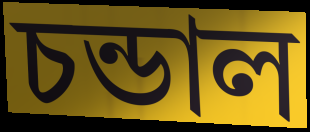
চন্ডাল